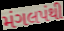
મંગલપંથી